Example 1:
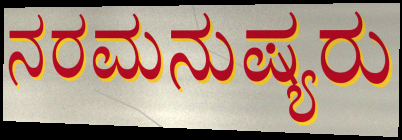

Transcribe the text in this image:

ನರಮನುಷ್ಯರು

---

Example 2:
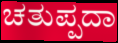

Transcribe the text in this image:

ಚತುಪ್ಪದಾ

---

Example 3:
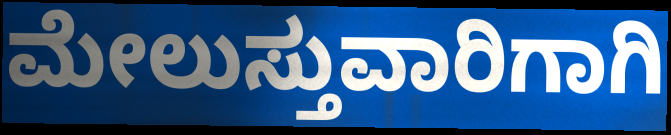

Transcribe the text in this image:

ಮೇಲುಸ್ತುವಾರಿಗಾಗಿ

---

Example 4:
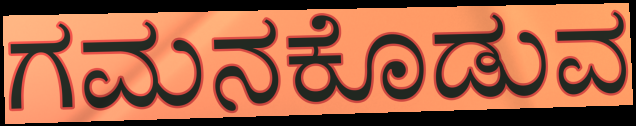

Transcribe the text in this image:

ಗಮನಕೊಡುವ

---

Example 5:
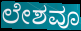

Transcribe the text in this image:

ಲೇಶವೂ